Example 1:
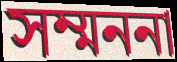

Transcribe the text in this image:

সম্মননা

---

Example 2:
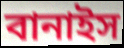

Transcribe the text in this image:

বানাইস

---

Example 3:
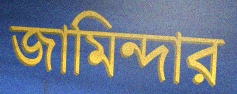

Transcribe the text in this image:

জামিন্দার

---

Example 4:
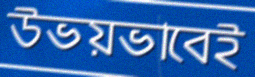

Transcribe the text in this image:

উভয়ভাবেই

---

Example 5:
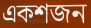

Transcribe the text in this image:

একশজন